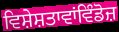
ਵਿਸ਼ੇਸ਼ਤਾਵਾਂਵਿੰਡੋਜ਼